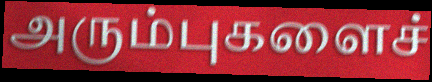
அரும்புகளைச்